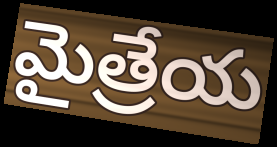
మైత్రేయ